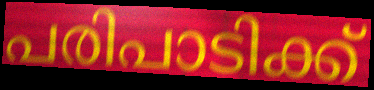
പരിപാടിക്ക്